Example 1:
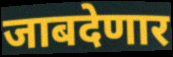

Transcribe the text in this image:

जाबदेणार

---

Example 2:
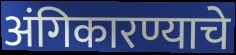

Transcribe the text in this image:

अंगिकारण्याचे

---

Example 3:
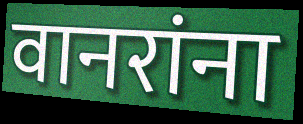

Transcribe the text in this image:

वानरांना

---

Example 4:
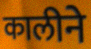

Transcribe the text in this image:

कालीने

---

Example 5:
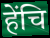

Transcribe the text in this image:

हेंचि